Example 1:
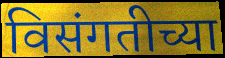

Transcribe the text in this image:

विसंगतीच्या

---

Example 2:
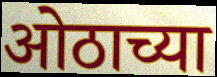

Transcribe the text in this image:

ओठाच्या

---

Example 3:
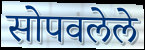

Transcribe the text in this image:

सोपवलेले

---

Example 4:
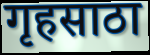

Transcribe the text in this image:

गृहसाठा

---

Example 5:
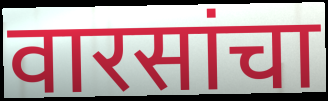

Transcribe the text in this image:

वारसांचा